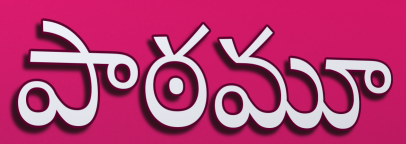
పాఠమూ